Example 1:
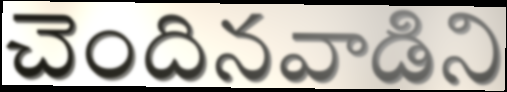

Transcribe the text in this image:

చెందినవాడిని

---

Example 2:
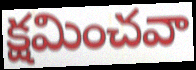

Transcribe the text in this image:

క్షమించవా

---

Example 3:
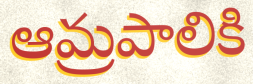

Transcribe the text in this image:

ఆమ్రపాలికి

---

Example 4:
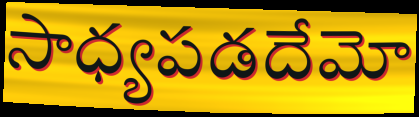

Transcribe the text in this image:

సాధ్యపడదేమో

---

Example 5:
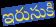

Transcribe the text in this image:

ఇరుసుకి